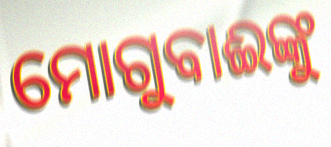
ମୋଗୁବାଈଙ୍କୁ